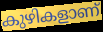
കുഴികളാണ്